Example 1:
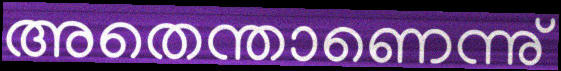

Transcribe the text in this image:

അതെന്താണെന്നു്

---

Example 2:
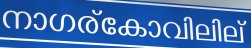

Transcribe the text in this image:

നാഗര്കോവിലില്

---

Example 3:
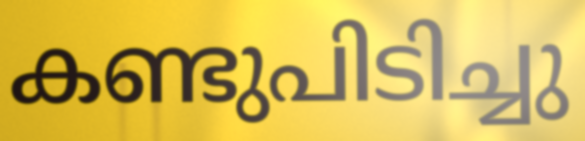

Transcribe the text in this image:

കണ്ടുപിടിച്ചു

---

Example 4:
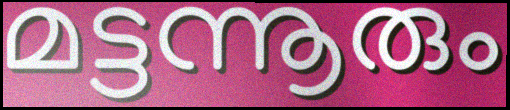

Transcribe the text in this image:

മട്ടന്നൂരും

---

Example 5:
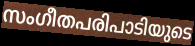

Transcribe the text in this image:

സംഗീതപരിപാടിയുടെ